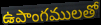
ఉపాంగములతో